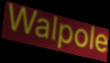
Walpole